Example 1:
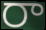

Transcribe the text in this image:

రా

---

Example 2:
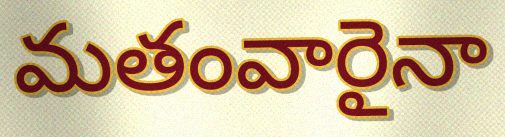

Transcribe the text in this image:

మతంవారైనా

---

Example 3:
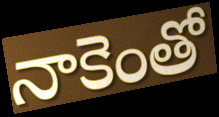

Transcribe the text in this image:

నాకెంతో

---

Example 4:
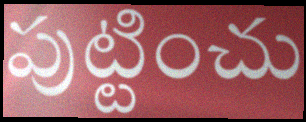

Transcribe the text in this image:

పుట్టించు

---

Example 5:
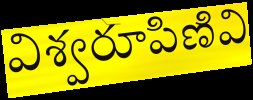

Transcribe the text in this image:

విశ్వరూపిణివి